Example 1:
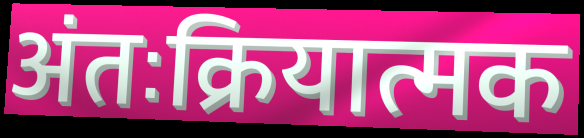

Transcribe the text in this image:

अंतःक्रियात्मक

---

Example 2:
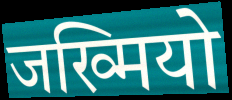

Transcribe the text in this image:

जख्मियो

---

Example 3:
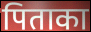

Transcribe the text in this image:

पिताका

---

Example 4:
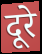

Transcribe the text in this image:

दूरे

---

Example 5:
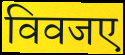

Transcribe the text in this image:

विवजए